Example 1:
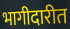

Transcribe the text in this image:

भागीदारीत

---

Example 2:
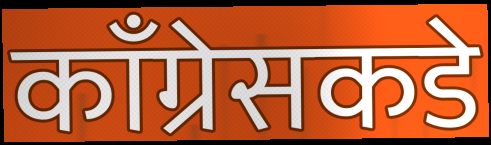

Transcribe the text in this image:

काँग्रेसकडे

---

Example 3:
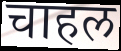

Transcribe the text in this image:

चाहल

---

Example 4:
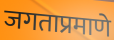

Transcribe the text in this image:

जगताप्रमाणे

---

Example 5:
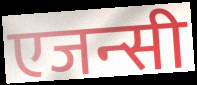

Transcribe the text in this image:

एजन्सी